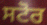
ਸਟੋਰ